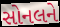
સોનલને